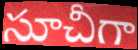
సూచీగా